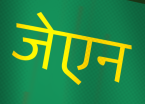
जेएन